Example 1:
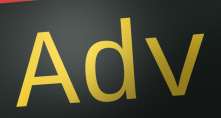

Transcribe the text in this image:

Adv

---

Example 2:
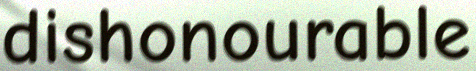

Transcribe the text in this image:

dishonourable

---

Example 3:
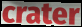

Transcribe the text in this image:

crater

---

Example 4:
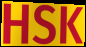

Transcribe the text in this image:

HSK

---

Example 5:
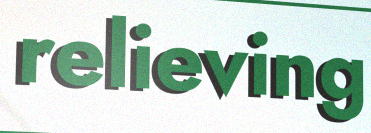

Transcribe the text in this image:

relieving